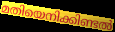
മതിയെനിക്കിണ്ടൽ